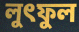
লুৎফুল